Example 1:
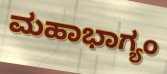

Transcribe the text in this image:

ಮಹಾಭಾಗ್ಯಂ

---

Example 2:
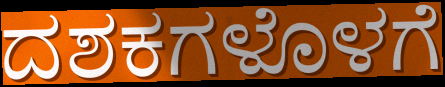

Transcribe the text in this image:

ದಶಕಗಳೊಳಗೆ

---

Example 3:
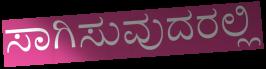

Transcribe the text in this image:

ಸಾಗಿಸುವುದರಲ್ಲಿ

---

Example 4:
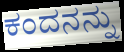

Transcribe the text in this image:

ಕಂದನನ್ನು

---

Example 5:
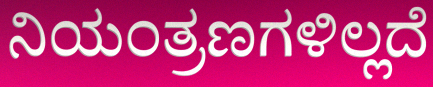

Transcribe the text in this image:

ನಿಯಂತ್ರಣಗಳಿಲ್ಲದೆ